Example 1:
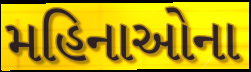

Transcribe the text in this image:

મહિનાઓના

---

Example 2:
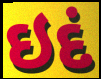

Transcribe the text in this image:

ઇદં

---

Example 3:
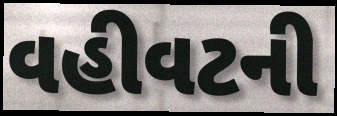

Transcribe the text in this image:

વહીવટની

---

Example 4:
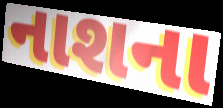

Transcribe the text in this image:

નાશના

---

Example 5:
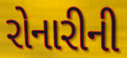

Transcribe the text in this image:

રોનારીની